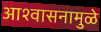
आश्वासनामुळे